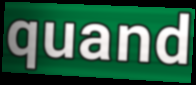
quand